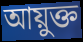
আয়ুক্ত